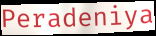
Peradeniya